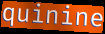
quinine